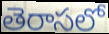
తెరాసలో